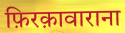
फ़िरक़ावाराना